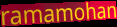
ramamohan